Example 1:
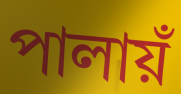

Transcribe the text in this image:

পালায়ঁ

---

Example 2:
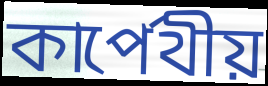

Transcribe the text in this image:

কার্পেথীয়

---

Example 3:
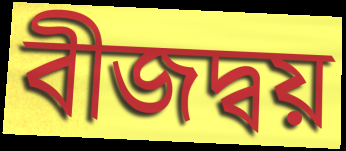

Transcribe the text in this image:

বীজদ্বয়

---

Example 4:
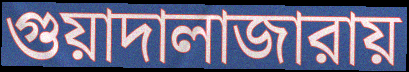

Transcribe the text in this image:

গুয়াদালাজারায়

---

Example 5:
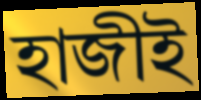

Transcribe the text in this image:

হাজীই